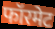
फॉरमेट